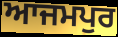
ਆਜਮਪੁਰ